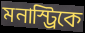
মনাস্ট্রিকে